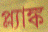
প্ল্যাঙ্ক